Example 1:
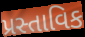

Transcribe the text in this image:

પ્રસ્તાવિક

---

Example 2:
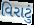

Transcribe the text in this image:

વિરાટું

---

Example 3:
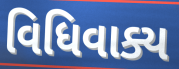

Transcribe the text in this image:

વિધિવાક્ય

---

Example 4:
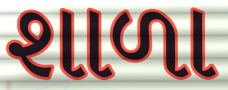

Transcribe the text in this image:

શાળા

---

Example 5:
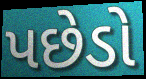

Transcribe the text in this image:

પછેડો